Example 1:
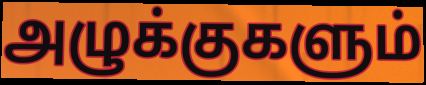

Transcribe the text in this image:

அழுக்குகளும்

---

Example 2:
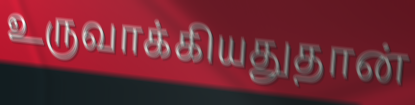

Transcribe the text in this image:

உருவாக்கியதுதான்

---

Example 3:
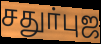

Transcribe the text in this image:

சதுர்புஜ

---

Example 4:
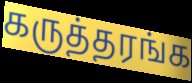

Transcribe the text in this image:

கருத்தரங்க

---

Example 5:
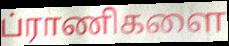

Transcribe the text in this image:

ப்ராணிகளை